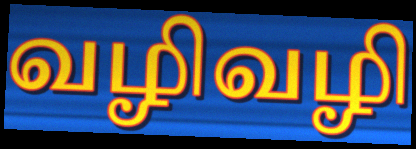
வழிவழி